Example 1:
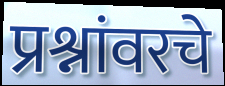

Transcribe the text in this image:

प्रश्नांवरचे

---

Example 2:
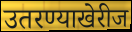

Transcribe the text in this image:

उतरण्याखेरीज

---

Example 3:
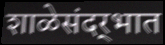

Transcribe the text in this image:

शाळेसंदर्भात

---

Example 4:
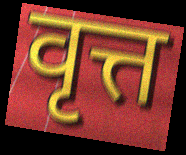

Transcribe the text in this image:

वृत्त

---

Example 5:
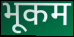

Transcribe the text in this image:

भूकम